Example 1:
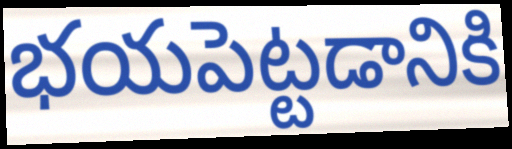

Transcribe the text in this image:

భయపెట్టడానికి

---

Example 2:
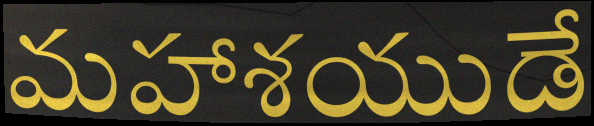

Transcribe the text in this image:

మహాశయుడే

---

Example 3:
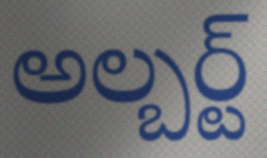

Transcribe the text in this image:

అల్బర్ట్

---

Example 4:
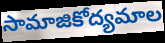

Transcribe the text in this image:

సామాజికోద్యమాల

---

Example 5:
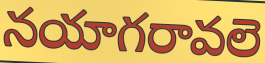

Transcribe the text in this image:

నయాగరావలె